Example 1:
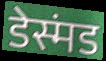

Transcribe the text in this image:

डेस्मंड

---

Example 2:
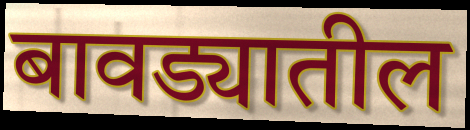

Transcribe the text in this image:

बावड्यातील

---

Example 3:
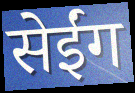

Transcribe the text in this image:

सेईंग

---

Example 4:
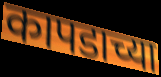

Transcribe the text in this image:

कापडाच्या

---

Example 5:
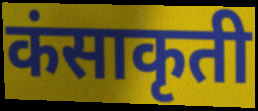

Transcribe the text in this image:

कंसाकृती